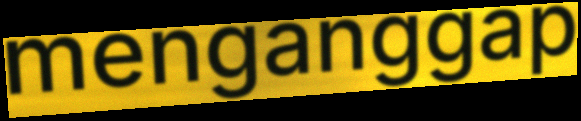
menganggap